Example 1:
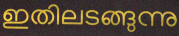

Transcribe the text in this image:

ഇതിലടങ്ങുന്നു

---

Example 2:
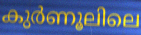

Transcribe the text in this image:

കുർണൂലിലെ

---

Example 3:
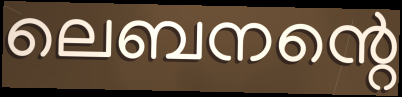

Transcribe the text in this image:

ലെബനന്റെ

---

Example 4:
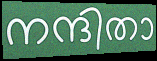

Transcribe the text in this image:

നന്ദിതാ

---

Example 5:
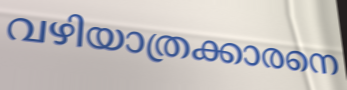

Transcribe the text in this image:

വഴിയാത്രക്കാരനെ